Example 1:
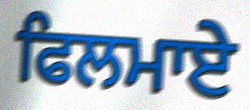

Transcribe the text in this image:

ਫਿਲਮਾਏ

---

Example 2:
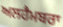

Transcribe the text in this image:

ਅਲਹੈਮਬਰਾ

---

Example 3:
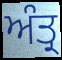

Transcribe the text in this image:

ਅੰਤ੍ਰ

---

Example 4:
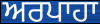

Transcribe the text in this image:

ਅਰਪਾਹਾ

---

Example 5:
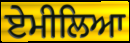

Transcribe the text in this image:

ਏਮੀਲਿਆ